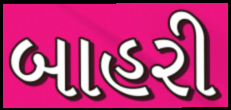
બાહરી